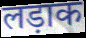
लड़ाक